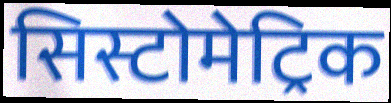
सिस्टोमेट्रिक